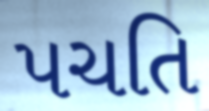
પચતિ